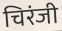
चिरंजी